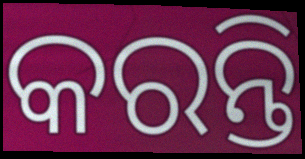
କରନ୍ତି